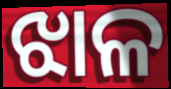
ଝାଳ